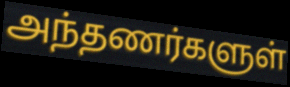
அந்தணர்களுள்